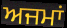
ਅਜਮਾਂ